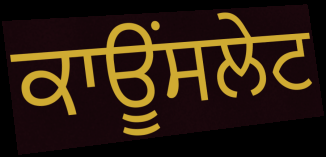
ਕਾਊਂਸਲੇਟ